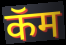
कॅम